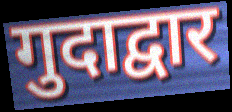
गुदाद्वार